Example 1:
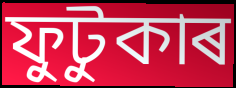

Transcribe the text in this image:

ফুটুকাৰ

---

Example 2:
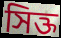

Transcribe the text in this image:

সিক্ত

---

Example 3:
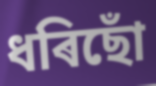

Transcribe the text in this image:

ধৰিছোঁ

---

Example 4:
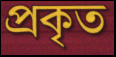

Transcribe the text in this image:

প্ৰকৃত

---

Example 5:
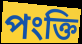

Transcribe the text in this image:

পংক্তি